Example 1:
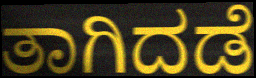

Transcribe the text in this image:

ತಾಗಿದಡೆ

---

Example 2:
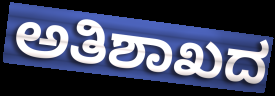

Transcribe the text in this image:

ಅತಿಶಾಖದ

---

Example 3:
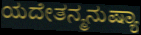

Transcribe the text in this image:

ಯದೇತನ್ಮನುಷ್ಯಾ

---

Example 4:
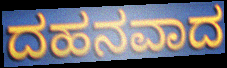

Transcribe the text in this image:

ದಹನವಾದ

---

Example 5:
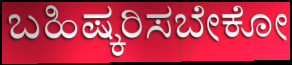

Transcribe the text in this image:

ಬಹಿಷ್ಕರಿಸಬೇಕೋ